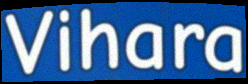
Vihara